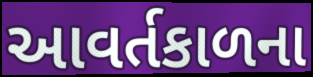
આવર્તકાળના